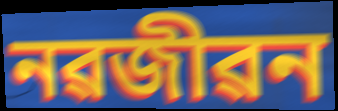
নৱজীৱন